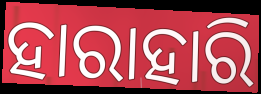
ହାରାହାରି